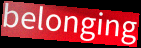
belonging